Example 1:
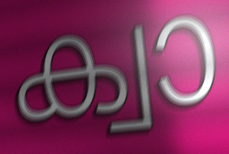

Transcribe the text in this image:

ക്വാ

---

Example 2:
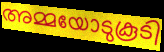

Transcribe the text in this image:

അമ്മയോടുകൂടി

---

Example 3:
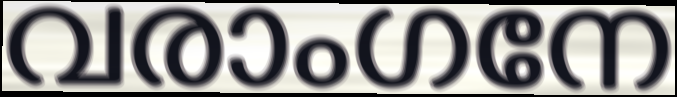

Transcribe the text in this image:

വരാംഗനേ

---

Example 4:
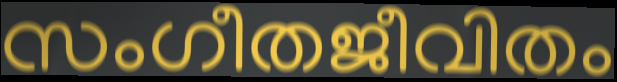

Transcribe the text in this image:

സംഗീതജീവിതം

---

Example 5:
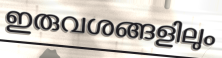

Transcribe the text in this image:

ഇരുവശങ്ങളിലും